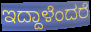
ಇದ್ದಾಳೆಂದರೆ